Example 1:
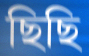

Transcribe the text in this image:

ছিছি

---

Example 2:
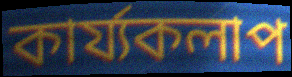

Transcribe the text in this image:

কাৰ্য্যকলাপ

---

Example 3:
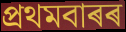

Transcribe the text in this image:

প্ৰথমবাৰৰ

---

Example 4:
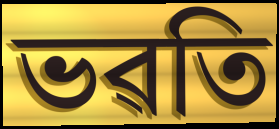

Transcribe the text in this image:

ভৱতি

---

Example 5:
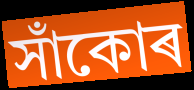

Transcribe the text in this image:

সাঁকোৰ